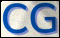
CG